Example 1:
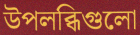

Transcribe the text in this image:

উপলব্ধিগুলো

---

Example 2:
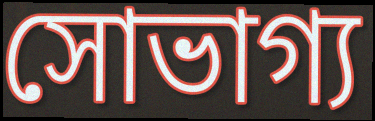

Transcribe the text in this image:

সোভাগ্য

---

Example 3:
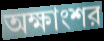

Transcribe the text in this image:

অক্ষাংশর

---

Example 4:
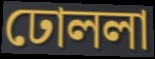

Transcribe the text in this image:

ঢোললা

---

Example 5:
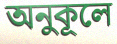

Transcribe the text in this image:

অনুকূলে